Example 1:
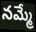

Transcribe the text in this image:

నమ్మే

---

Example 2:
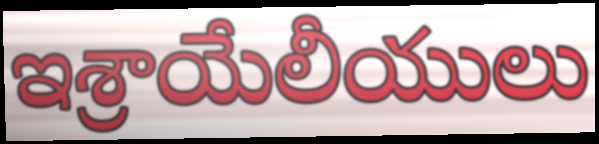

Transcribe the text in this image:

ఇశ్రాయేలీయులు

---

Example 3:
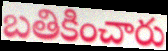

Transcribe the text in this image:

బతికించారు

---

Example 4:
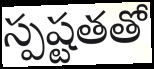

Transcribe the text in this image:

స్పష్టతతో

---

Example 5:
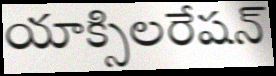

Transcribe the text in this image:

యాక్సిలరేషన్